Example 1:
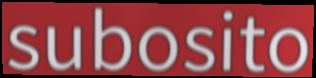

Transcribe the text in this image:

subosito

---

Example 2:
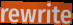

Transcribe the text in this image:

rewrite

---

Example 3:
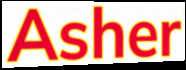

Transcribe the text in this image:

Asher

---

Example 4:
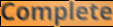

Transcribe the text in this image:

Complete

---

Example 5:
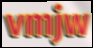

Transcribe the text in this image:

vmjw